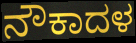
ನೌಕಾದಳ